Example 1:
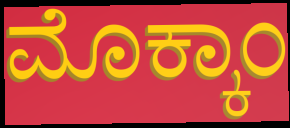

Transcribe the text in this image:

ಮೊಕ್ಕಾಂ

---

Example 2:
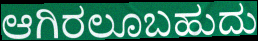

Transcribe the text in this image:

ಆಗಿರಲೂಬಹುದು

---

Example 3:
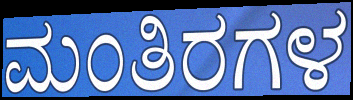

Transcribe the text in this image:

ಮಂತಿರಗಳ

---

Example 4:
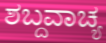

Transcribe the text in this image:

ಶಬ್ದವಾಚ್ಯ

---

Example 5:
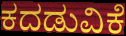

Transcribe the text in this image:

ಕದಡುವಿಕೆ